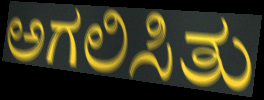
ಅಗಲಿಸಿತು